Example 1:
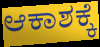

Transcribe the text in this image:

ಆಕಾಶಕ್ಕೆ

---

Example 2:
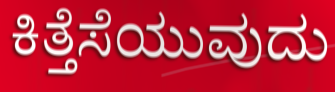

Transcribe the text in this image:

ಕಿತ್ತೆಸೆಯುವುದು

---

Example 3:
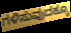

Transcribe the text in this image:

ಗಳಿಸುವುದಕ್ಕೂ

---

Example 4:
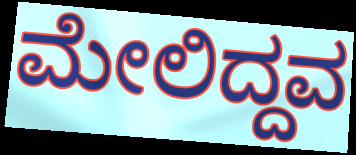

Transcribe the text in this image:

ಮೇಲಿದ್ದವ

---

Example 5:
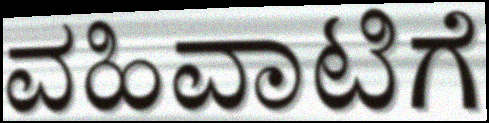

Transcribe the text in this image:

ವಹಿವಾಟಿಗೆ